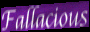
Fallacious